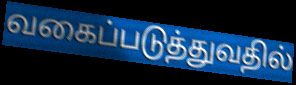
வகைப்படுத்துவதில்